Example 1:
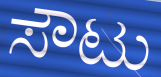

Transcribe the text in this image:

ಸೌಟು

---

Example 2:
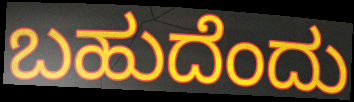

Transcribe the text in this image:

ಬಹುದೆಂದು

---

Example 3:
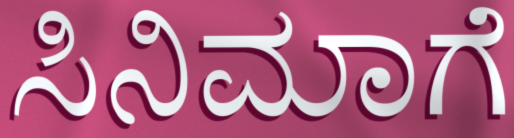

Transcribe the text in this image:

ಸಿನಿಮಾಗೆ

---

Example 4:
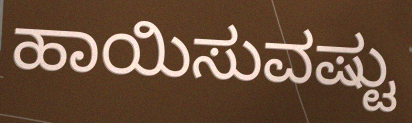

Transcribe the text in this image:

ಹಾಯಿಸುವಷ್ಟು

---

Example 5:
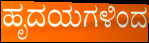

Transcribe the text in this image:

ಹೃದಯಗಳಿಂದ